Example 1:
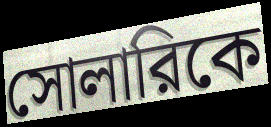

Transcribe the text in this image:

সোলারিকে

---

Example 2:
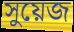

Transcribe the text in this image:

সুয়েজ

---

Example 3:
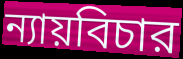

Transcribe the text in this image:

ন্যায়বিচার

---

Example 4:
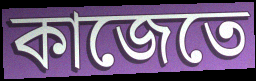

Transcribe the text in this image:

কাজেতে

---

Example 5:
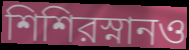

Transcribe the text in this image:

শিশিরস্নানও